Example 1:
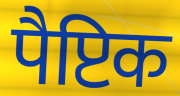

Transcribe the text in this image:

पैप्टिक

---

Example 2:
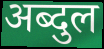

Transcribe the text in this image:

अब्दुल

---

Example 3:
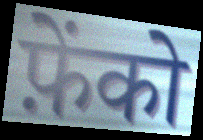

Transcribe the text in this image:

फ़ेंको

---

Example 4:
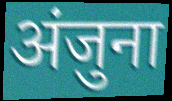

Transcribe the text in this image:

अंजुना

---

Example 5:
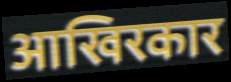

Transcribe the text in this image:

आखिरकार